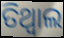
ତିଥ୍ୱାଲ